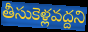
తీసుకెళ్లవద్దని